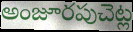
అంజూరపుచెట్ల